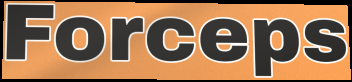
Forceps